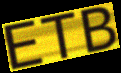
ETB